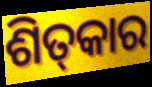
ଶିତ୍‍କାର